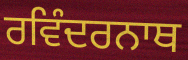
ਰਵਿੰਦਰਨਾਥ